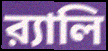
র‍্যালি